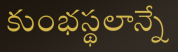
కుంభస్థలాన్నే